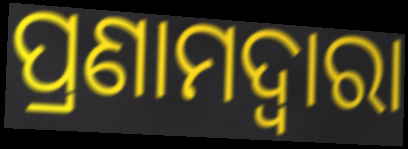
ପ୍ରଣାମଦ୍ୱାରା